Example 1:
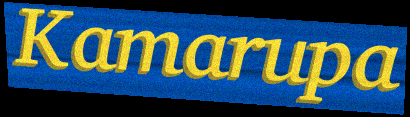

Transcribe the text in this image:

Kamarupa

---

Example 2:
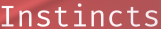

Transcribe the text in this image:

Instincts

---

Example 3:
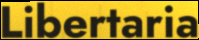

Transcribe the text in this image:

Libertaria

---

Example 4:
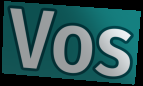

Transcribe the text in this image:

Vos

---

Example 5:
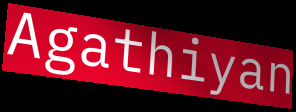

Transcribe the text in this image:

Agathiyan